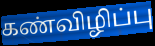
கண்விழிப்பு